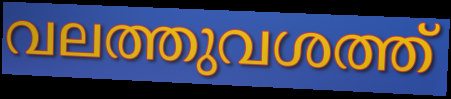
വലത്തുവശത്ത്